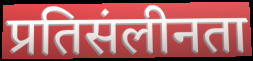
प्रतिसंलीनता